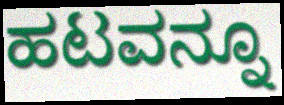
ಹಟವನ್ನೂ